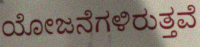
ಯೋಜನೆಗಳಿರುತ್ತವೆ